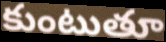
కుంటుతూ